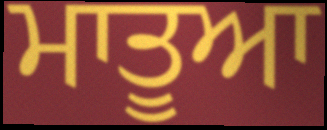
ਮਾਤੂਆ